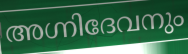
അഗ്നിദേവനും